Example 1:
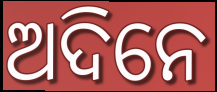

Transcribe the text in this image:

ଅଦିନେ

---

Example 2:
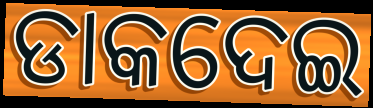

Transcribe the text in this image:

ଡାକଦେଇ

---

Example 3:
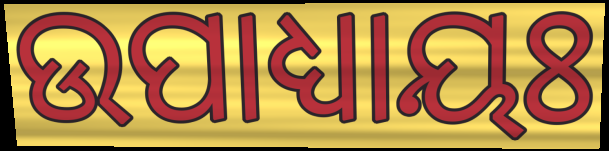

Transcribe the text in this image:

ଉପାଧ୍ୟାୟଃ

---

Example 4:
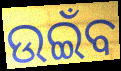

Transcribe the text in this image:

ଉଇଁବ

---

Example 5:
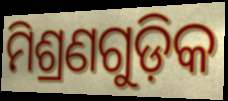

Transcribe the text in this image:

ମିଶ୍ରଣଗୁଡ଼ିକ